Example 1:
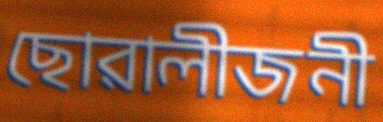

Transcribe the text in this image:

ছোৱালীজনী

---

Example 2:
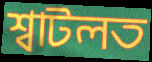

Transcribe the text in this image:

শ্বাটলত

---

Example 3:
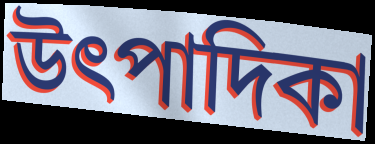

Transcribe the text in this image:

উৎপাদিকা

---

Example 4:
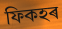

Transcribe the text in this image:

ফিকহৰ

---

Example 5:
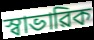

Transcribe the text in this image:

স্বাভাৱিক